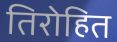
तिरोहित